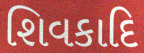
શિવકાદિ